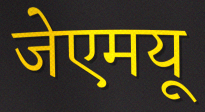
जेएमयू